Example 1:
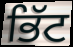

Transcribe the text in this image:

ਭਿੱਟ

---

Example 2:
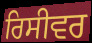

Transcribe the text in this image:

ਰਿਸੀਵਰ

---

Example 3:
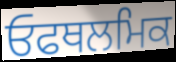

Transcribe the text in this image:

ਓਫਥਲਮਿਕ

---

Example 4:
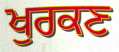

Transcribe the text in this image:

ਖੁਰਕਣ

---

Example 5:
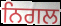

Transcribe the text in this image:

ਨਿਗਲ